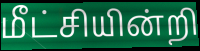
மீட்சியின்றி